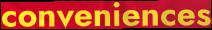
conveniences